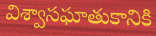
విశ్వాసఘాతుకానికి